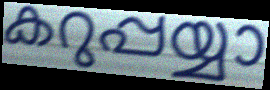
കറുപ്പയ്യാ